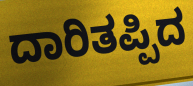
ದಾರಿತಪ್ಪಿದ